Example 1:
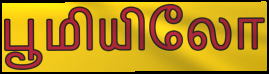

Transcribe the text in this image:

பூமியிலோ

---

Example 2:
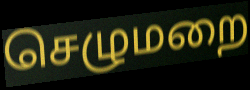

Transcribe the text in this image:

செழுமறை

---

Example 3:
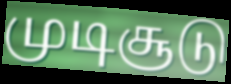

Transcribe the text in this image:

முடிசூடு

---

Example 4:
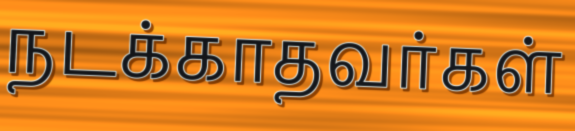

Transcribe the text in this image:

நடக்காதவர்கள்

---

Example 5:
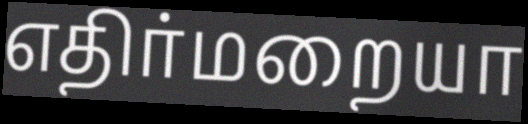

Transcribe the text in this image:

எதிர்மறையா